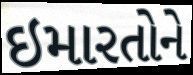
ઇમારતોને